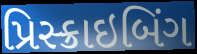
પ્રિસ્ક્રાઇબિંગ